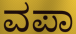
ವಪಾ